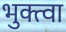
भुक्त्वा